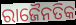
ରାଜୈନତିକ